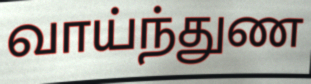
வாய்ந்துண